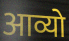
आव्यो